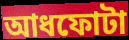
আধফোটা